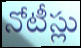
నోటీస్లు